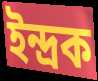
ইন্দ্ৰক